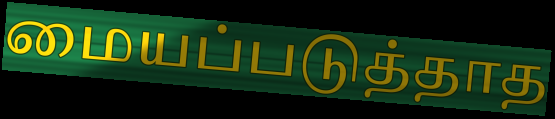
மையப்படுத்தாத